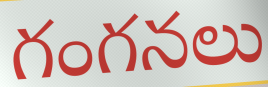
గంగనలు